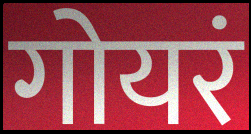
गोयरं